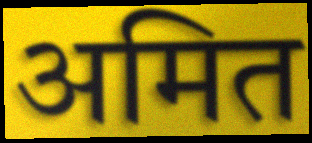
अमित